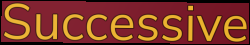
Successive